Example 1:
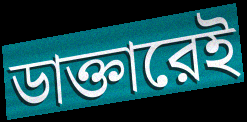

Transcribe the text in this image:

ডাক্তারেই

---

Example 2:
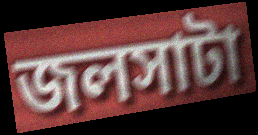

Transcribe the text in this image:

জলসাটা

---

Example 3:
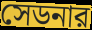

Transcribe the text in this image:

সেডনার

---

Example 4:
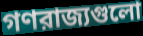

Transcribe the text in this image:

গণরাজ্যগুলো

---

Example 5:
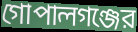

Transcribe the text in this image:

গোপালগঞ্জের